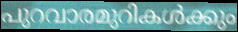
പുറവാരമുറികൾക്കും